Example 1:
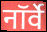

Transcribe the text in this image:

नॉर्वे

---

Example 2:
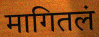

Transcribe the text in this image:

मागितलं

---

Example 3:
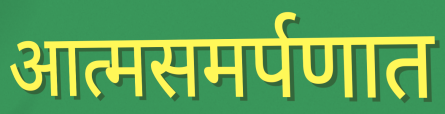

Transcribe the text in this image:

आत्मसमर्पणात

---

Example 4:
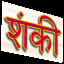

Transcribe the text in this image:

शंकी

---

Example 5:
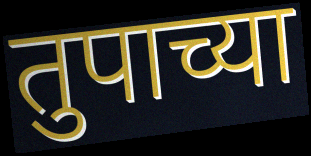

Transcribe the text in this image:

तुपाच्या